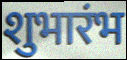
शुभारंभ